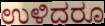
ಉಳಿದರೂ